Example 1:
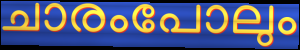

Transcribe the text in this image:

ചാരംപോലും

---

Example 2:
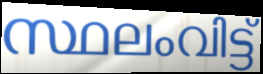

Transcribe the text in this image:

സ്ഥലംവിട്ട്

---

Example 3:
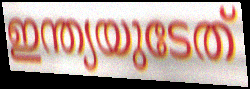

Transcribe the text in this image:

ഇന്ത്യയുടേത്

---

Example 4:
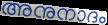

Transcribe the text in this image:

അനുനാദം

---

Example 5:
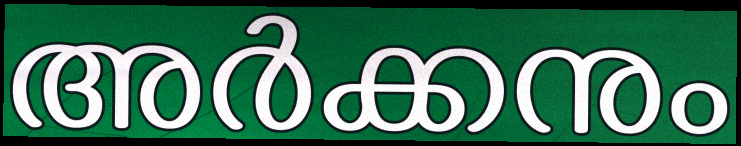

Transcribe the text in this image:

അർക്കനും